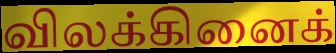
விலக்கினைக்